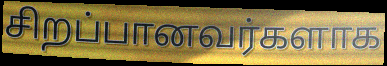
சிறப்பானவர்களாக